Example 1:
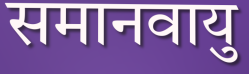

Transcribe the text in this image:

समानवायु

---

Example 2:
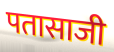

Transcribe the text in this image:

पतासाजी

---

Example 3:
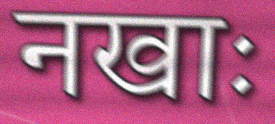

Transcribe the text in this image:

नखाः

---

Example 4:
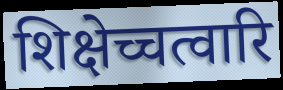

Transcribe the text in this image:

शिक्षेच्चत्वारि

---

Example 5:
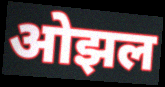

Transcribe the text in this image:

ओझल